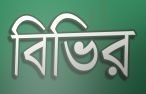
বিভির